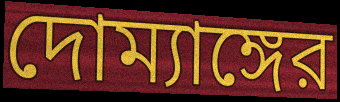
দোম্যাঙ্গের